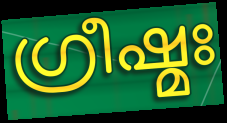
ഗ്രീഷ്മഃ